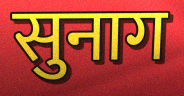
सुनाग